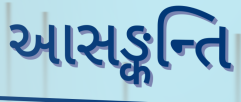
આસઙ્કન્તિ